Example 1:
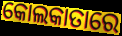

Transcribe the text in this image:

କୋଲକାତାରେ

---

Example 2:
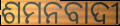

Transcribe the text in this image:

ଶମନବାଦୀ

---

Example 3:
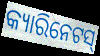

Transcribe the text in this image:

କ୍ୟାରିନେଟସ୍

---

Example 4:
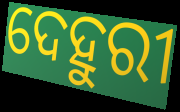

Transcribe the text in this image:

ଦେହୁରୀ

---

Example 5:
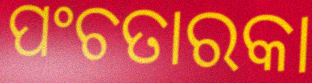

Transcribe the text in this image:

ପଂଚତାରକା